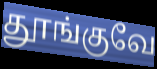
தூங்குவே